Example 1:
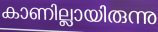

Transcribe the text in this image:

കാണില്ലായിരുന്നു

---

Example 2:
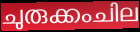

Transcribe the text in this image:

ചുരുക്കംചില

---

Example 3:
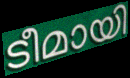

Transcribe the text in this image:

ടീമായി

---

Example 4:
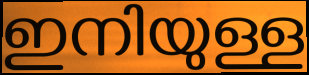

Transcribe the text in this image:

ഇനിയുള്ള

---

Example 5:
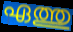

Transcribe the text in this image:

ഏത്തു